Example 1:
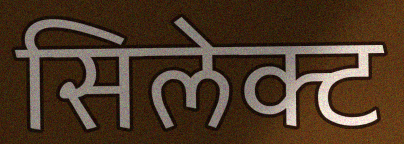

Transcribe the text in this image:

सिलेक्ट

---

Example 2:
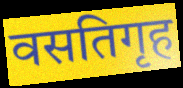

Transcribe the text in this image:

वसतिगृह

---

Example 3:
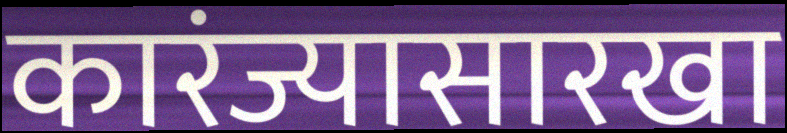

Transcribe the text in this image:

कारंज्यासारखा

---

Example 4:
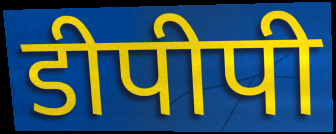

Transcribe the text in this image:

डीपीपी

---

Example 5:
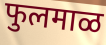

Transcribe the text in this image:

फुलमाळ